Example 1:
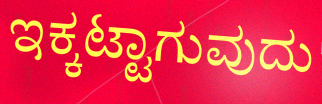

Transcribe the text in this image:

ಇಕ್ಕಟ್ಟಾಗುವುದು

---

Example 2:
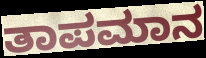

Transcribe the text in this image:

ತಾಪಮಾನ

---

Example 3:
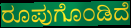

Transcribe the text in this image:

ರೂಪುಗೊಂಡಿದೆ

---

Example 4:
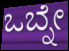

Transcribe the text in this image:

ಒಬ್ನೇ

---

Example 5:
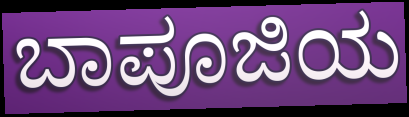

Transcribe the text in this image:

ಬಾಪೂಜಿಯ